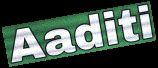
Aaditi